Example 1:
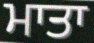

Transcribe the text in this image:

ਮਾਤਾ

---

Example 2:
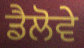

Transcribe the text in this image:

ਡੈਲੋਵੇ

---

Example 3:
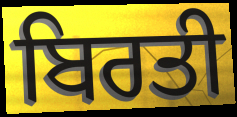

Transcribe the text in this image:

ਬਿਰਤੀ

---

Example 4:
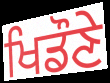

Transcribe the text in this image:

ਖਿਡੌਣੇ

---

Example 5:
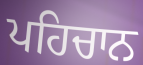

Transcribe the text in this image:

ਪਹਿਚਾਨ